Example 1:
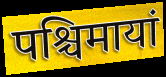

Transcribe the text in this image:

पश्चिमायां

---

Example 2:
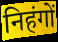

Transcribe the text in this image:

निहंगों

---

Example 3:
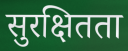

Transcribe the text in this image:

सुरक्षितता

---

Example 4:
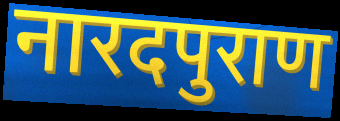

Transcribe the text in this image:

नारदपुराण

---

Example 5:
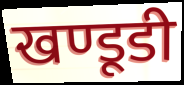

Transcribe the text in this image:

खण्डूडी